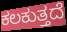
ಕಲಕುತ್ತದೆ